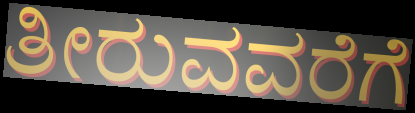
ತೀರುವವರೆಗೆ